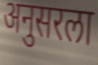
अनुसरला